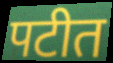
पटीत